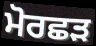
ਮੋਰਛੜ